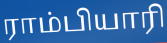
ராம்பியாரி